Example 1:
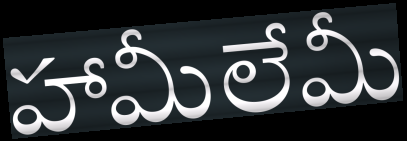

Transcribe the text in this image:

హామీలేమీ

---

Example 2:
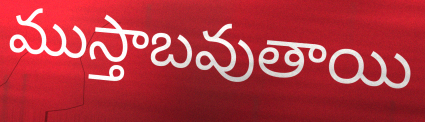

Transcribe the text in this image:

ముస్తాబవుతాయి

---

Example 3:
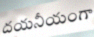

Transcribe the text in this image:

దయనీయంగా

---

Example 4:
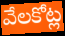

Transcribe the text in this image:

వేలకోట్ల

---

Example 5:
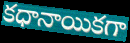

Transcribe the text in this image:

కధానాయికగా